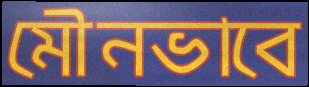
মৌনভাবে